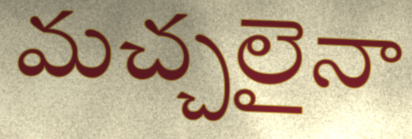
మచ్చలైనా